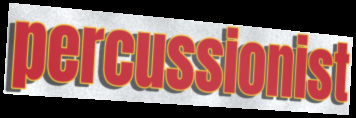
percussionist